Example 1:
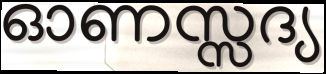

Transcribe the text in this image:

ഓണസ്സദ്യ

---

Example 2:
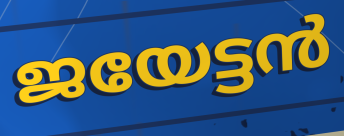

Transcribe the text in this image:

ജയേട്ടൻ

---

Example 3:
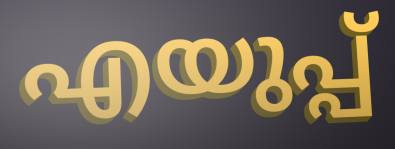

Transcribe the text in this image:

എയുപ്പ്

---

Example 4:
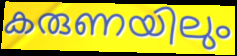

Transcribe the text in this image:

കരുണയിലും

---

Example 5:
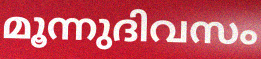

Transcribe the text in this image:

മൂന്നുദിവസം